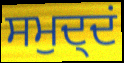
ਸਮੁਦ੍ਦਂ